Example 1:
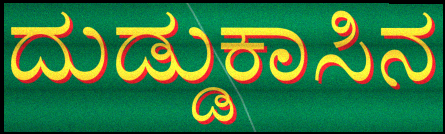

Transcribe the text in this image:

ದುಡ್ಡುಕಾಸಿನ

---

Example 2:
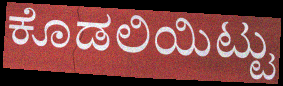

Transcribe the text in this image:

ಕೊಡಲಿಯಿಟ್ಟು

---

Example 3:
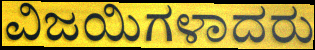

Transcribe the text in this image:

ವಿಜಯಿಗಳಾದರು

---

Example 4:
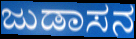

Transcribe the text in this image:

ಜುಡಾಸನ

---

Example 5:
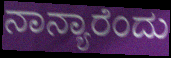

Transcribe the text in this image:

ನಾನ್ಯಾರೆಂದು